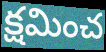
క్షమించ